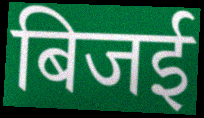
बिजई